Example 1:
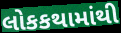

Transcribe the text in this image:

લોકકથામાંથી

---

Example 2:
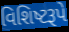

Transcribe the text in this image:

વિશિષ્ટરૂપે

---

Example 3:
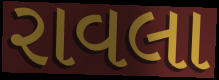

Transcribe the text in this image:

રાવલા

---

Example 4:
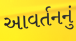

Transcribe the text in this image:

આવર્તનનું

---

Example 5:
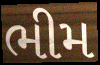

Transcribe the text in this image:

ભીમ